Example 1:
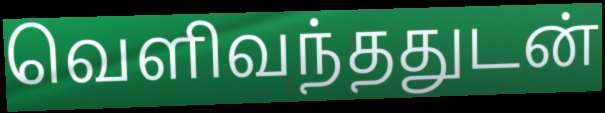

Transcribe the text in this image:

வெளிவந்ததுடன்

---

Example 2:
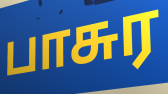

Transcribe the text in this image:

பாசுர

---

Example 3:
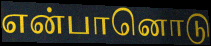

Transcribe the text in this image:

என்பானொடு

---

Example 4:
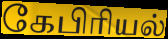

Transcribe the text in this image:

கேபிரியல்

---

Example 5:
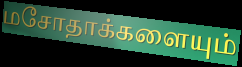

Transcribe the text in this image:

மசோதாக்களையும்